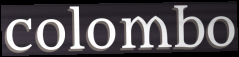
colombo